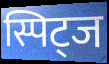
स्पिट्ज